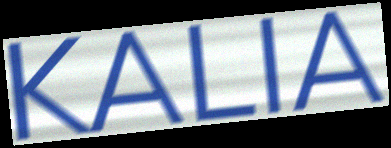
KALIA